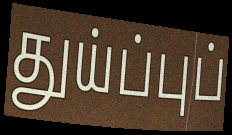
துய்ப்புப்